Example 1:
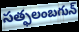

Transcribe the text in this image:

సత్ఫలంబగున్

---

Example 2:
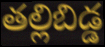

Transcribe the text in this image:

తల్లిబిడ్డ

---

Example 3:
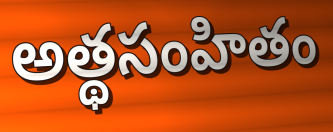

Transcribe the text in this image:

అత్థసంహితం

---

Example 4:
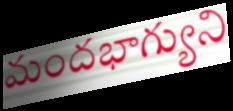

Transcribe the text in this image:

మందభాగ్యుని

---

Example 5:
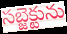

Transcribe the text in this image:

సబ్జెక్టును